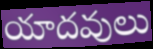
యాదవులు